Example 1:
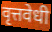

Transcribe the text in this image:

वृत्तवेधी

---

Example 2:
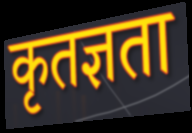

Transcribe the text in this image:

कृतज्ञता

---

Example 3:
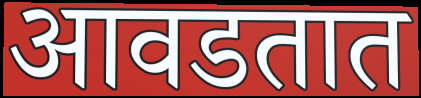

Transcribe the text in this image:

आवडतात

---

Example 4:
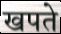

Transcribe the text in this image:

खपते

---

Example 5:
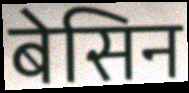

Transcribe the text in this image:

बेसिन